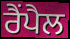
ਰੈਂਪੈਲ